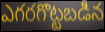
ఎగరగొట్టబడిన